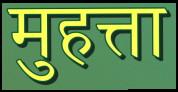
मुहत्ता